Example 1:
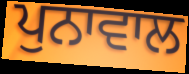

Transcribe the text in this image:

ਪੁਨਾਵਾਲ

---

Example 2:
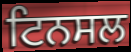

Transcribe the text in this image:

ਟਿਨਸਲ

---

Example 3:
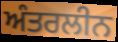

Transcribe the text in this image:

ਅੰਤਰਲੀਨ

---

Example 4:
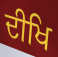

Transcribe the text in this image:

ਦੀਖਿ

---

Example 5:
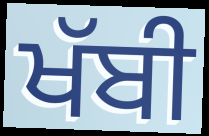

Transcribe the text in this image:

ਖੱਬੀ